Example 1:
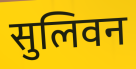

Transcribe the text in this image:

सुलिवन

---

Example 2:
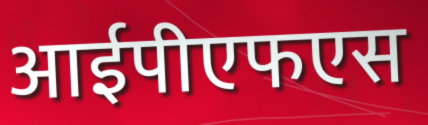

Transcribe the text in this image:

आईपीएफएस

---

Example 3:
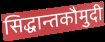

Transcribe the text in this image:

सिद्धान्तकौमुदी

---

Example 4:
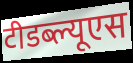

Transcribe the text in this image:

टीडब्ल्यूएस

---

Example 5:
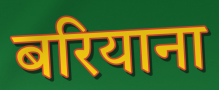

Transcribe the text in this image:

बरियाना